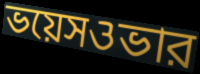
ভয়েসওভার